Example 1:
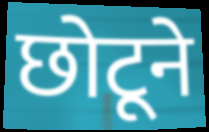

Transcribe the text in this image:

छोटूने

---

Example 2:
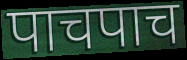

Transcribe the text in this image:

पाचपाच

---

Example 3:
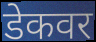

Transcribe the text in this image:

डेकवर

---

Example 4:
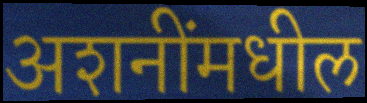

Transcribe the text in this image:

अशनींमधील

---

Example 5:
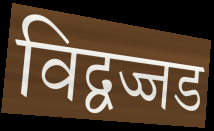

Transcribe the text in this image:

विद्वज्जड